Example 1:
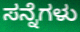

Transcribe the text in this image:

ಸನ್ನೆಗಳು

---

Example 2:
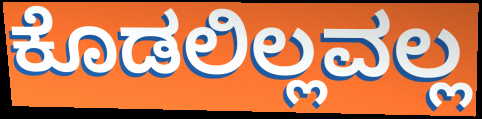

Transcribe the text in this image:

ಕೊಡಲಿಲ್ಲವಲ್ಲ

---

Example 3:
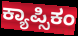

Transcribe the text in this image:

ಕ್ಯಾಪ್ಸಿಕಂ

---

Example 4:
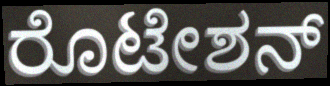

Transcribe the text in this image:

ರೊಟೇಶನ್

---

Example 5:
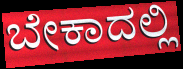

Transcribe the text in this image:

ಬೇಕಾದಲ್ಲಿ